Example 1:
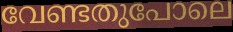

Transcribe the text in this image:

വേണ്ടതുപോലെ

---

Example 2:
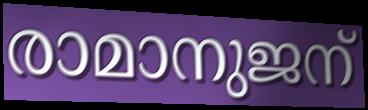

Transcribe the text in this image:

രാമാനുജന്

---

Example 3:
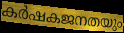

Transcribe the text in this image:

കർഷകജനതയും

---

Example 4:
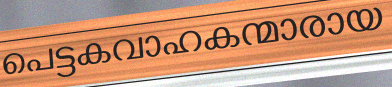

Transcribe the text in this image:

പെട്ടകവാഹകന്മാരായ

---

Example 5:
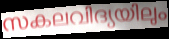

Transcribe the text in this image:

സകലവിദ്യയിലും